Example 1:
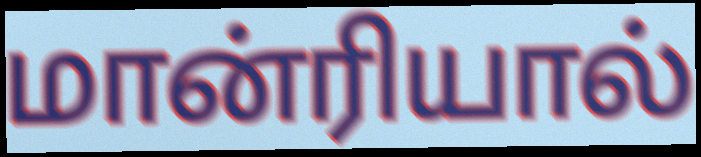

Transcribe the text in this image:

மான்ரியால்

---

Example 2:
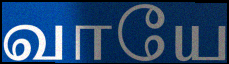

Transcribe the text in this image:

வாயே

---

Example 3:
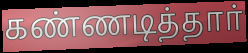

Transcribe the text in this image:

கண்ணடித்தார்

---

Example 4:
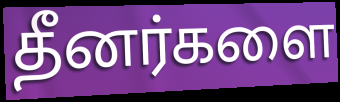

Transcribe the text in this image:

தீனர்களை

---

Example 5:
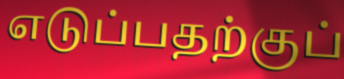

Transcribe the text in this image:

எடுப்பதற்குப்